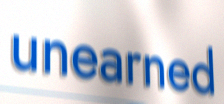
unearned